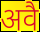
अवै